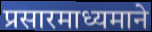
प्रसारमाध्यमाने